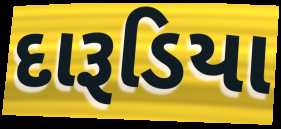
દારૂડિયા